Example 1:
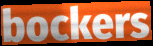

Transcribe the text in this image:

bockers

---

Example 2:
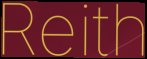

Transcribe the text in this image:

Reith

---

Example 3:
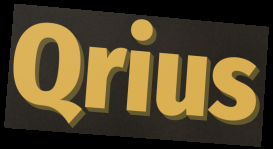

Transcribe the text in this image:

Qrius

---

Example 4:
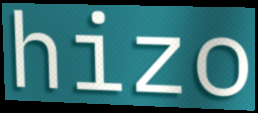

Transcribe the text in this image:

hizo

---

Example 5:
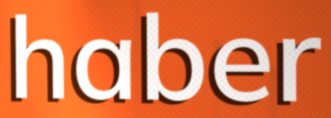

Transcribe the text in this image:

haber